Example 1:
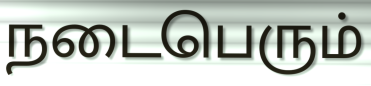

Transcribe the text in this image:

நடைபெரும்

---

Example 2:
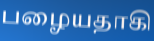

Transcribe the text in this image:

பழையதாகி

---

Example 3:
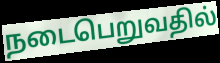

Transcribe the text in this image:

நடைபெறுவதில்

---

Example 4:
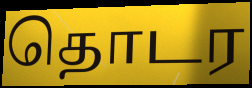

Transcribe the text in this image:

தொடர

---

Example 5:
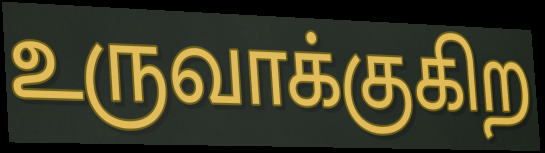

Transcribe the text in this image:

உருவாக்குகிற